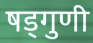
षड्गुणी